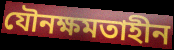
যৌনক্ষমতাহীন